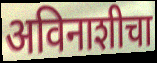
अविनाशीचा